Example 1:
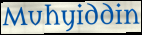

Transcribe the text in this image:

Muhyiddin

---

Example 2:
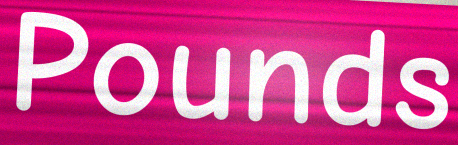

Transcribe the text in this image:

Pounds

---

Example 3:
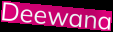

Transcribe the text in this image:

Deewana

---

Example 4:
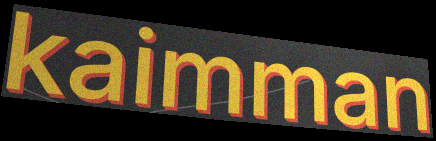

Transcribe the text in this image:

kaimman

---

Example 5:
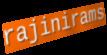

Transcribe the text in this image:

rajinirams